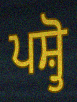
ਪਸ਼੍ਤੋ